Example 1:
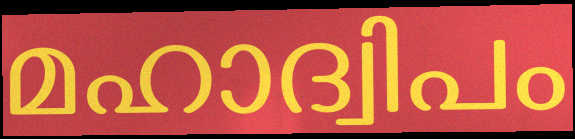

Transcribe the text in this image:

മഹാദ്വിപം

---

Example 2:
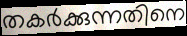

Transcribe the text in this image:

തകർക്കുന്നതിനെ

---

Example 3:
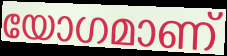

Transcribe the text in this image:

യോഗമാണ്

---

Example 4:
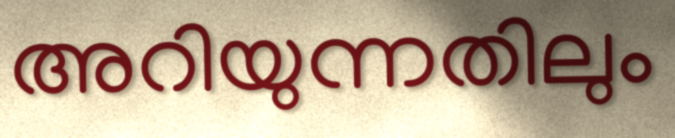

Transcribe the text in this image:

അറിയുന്നതിലും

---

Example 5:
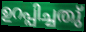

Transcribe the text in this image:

ഉറപ്പിച്ചതു്